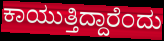
ಕಾಯುತ್ತಿದ್ದಾರೆಂದು